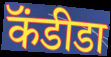
कॅंडीडा